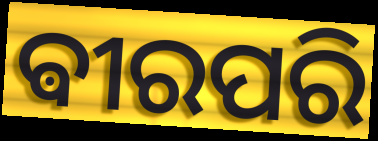
ଵୀରପରି